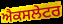
ਐਕਸਲੇਟਰ